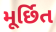
મૂર્છિત